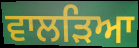
ਵਾਲੜਿਆ